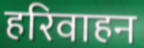
हरिवाहन